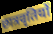
छात्रवृतियों